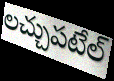
లచ్చుపటేల్